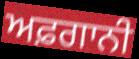
ਅਫ਼ਗਾਨੀ